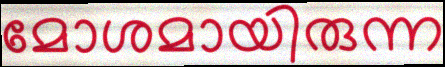
മോശമായിരുന്ന